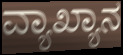
ವ್ಯಾಖ್ಯಾನ